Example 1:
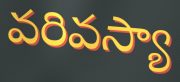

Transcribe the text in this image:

వరివస్యా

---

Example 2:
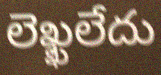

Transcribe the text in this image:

లెఖ్ఖలేదు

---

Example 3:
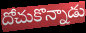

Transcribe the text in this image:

దోచుకొన్నాడు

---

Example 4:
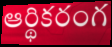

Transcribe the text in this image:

ఆర్థికరంగ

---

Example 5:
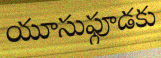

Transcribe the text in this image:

యూసుఫ్గూడకు